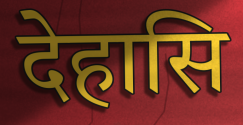
देहासि